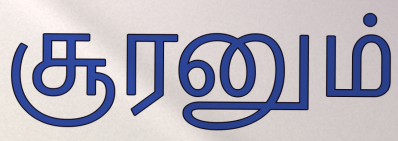
சூரனும்